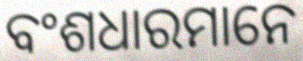
ବଂଶଧାରମାନେ